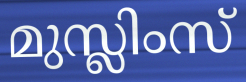
മുസ്ലിംസ്